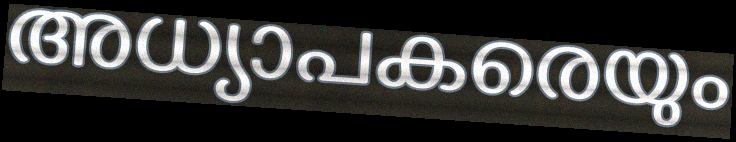
അധ്യാപകരെയും